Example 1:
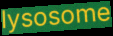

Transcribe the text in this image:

lysosome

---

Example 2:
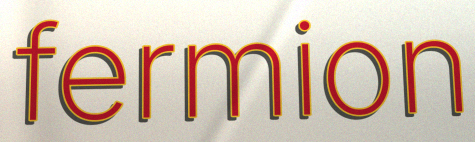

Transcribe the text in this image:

fermion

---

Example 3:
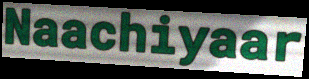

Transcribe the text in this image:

Naachiyaar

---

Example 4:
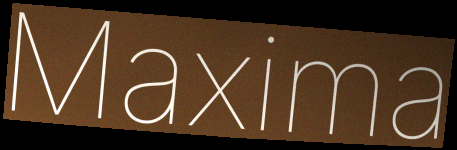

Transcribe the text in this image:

Maxima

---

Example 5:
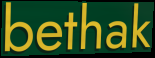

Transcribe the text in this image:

bethak